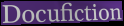
Docufiction